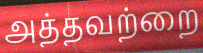
அத்தவற்றை